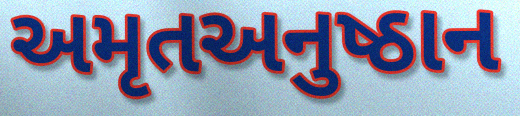
અમૃતઅનુષ્ઠાન